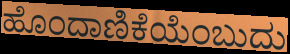
ಹೊಂದಾಣಿಕೆಯೆಂಬುದು